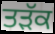
ਤੜੱਕ